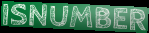
ISNUMBER